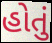
હોતું